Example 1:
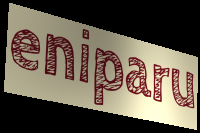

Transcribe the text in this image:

eniparu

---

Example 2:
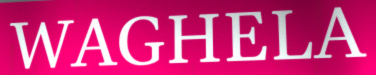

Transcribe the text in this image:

WAGHELA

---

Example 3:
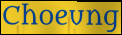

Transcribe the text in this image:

Choeung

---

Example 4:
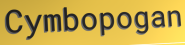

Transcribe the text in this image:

Cymbopogan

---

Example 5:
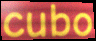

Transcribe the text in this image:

cubo